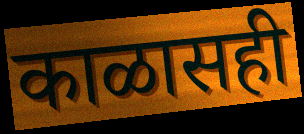
काळासही